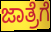
ಜಾತ್ರೆಗೆ